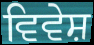
ਵਿਵੇਸ਼